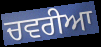
ਚਵਰੀਆ